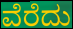
ವೆರೆದು